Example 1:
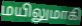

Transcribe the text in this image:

மயிலுமாகி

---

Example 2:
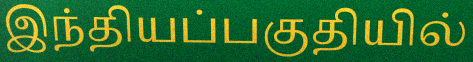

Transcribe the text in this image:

இந்தியப்பகுதியில்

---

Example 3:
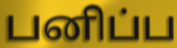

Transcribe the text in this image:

பனிப்ப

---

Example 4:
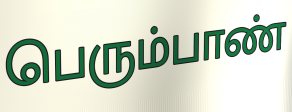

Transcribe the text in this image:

பெரும்பாண்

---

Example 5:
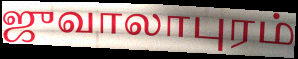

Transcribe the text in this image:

ஜுவாலாபுரம்